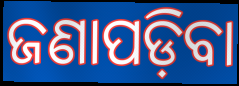
ଜଣାପଡ଼ିବା